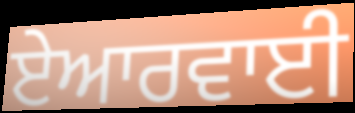
ਏਆਰਵਾਈ